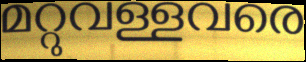
മറ്റുവള്ളവരെ